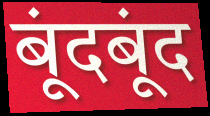
बूंदबूंद